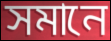
সমানে